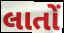
લાતોં